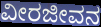
ವೀರಜೀವನ